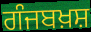
ਗੰਜਬਖ਼ਸ਼